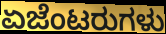
ಏಜೆಂಟರುಗಳು